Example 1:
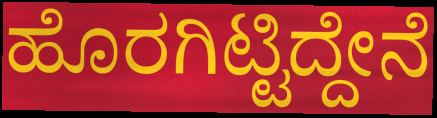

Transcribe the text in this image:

ಹೊರಗಿಟ್ಟಿದ್ದೇನೆ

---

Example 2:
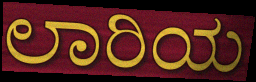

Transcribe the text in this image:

ಲಾರಿಯ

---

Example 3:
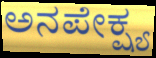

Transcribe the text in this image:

ಅನಪೇಕ್ಷ್ಯ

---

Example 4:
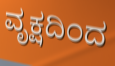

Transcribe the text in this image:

ವೃಕ್ಷದಿಂದ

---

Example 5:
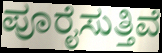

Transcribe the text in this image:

ಪೂರೈಸುತ್ತಿವೆ